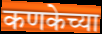
कणकेच्या